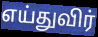
எய்துவிர்